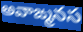
అవాఙ్మనస